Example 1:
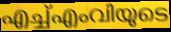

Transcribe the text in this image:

എച്ച്എംവിയുടെ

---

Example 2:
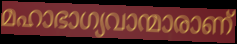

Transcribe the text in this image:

മഹാഭാഗ്യവാന്മാരാണ്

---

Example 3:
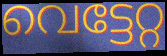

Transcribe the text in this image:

വെട്ടേറ്റ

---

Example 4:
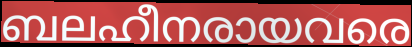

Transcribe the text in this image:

ബലഹീനരായവരെ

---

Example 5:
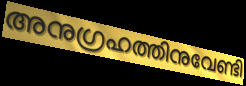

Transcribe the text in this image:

അനുഗ്രഹത്തിനുവേണ്ടി